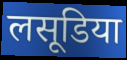
लसूडिया